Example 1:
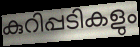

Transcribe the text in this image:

കുറിപ്പടികളും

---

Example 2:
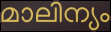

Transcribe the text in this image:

മാലിന്യം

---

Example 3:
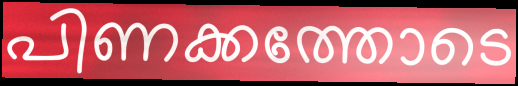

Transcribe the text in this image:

പിണക്കത്തോടെ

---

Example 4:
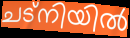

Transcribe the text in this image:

ചട്നിയിൽ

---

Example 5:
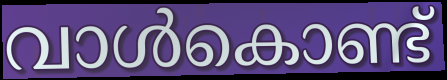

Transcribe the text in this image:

വാൾകൊണ്ട്